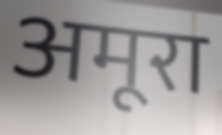
अमूरा